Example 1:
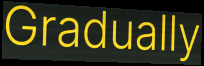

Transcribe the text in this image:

Gradually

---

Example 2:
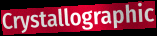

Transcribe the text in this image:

Crystallographic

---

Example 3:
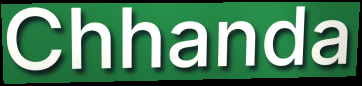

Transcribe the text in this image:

Chhanda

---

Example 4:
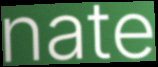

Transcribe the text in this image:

nate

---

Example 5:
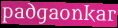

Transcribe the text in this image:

padgaonkar